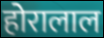
होरालाल